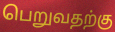
பெறுவதற்கு